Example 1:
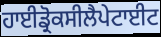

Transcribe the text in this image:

ਹਾਈਡ੍ਰੋਕਸੀਲੈਪੇਟਾਈਟ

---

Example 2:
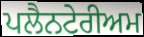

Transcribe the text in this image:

ਪਲੈਨਟੇਰੀਅਮ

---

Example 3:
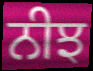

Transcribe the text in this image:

ਨੀਝ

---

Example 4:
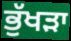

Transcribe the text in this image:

ਭੁੱਖੜਾ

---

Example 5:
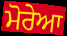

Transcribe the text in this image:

ਮੋਰੇਆ